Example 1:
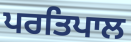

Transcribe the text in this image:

ਪਰਤਿਪਾਲ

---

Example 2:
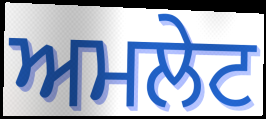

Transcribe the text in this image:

ਅਮਲੇਟ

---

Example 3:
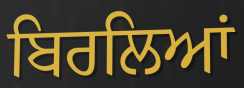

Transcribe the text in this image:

ਬਿਰਲਿਆਂ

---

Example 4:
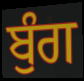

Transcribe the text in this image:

ਬੁੰਗ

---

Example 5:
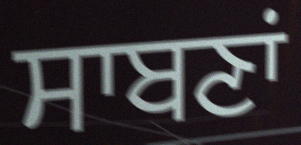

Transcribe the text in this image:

ਸਾਬਣਾਂ